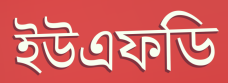
ইউএফডি